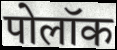
पोलॉक